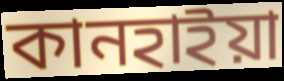
কানহাইয়া